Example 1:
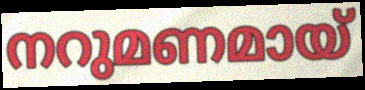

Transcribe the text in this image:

നറുമണമായ്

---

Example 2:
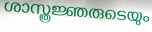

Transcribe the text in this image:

ശാസ്ത്രജ്ഞരുടെയും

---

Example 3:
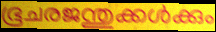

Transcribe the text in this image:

ഭൂചരജന്തുക്കൾക്കും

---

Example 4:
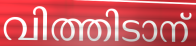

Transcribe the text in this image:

വിത്തിടാന്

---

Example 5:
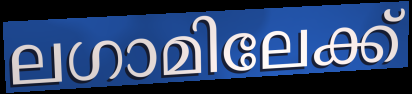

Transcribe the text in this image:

ലഗാമിലേക്ക്